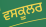
ਵਸਕੂਲਰ